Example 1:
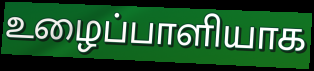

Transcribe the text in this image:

உழைப்பாளியாக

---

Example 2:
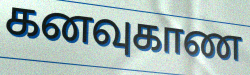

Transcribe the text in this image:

கனவுகாண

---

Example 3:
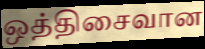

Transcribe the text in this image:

ஒத்திசைவான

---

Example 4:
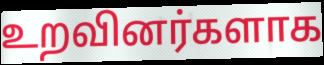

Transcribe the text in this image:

உறவினர்களாக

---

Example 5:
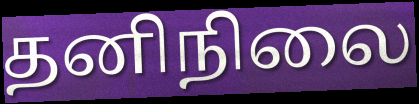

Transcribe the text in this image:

தனிநிலை